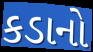
કડાનો